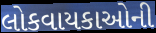
લોકવાયકાઓની